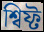
শ্বিফ্ট